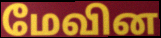
மேவின